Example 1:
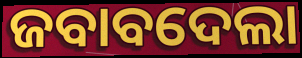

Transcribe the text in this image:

ଜବାବଦେଲା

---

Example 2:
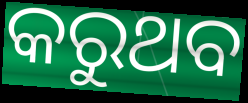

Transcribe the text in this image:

କରୁଥବ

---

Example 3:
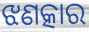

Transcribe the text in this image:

ଝଣତ୍କାର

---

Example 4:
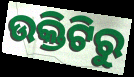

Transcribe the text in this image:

ଉକ୍ତିଟିରୁ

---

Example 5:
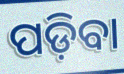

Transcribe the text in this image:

ପଡ଼ିବା